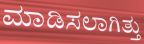
ಮಾಡಿಸಲಾಗಿತ್ತು